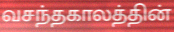
வசந்தகாலத்தின்